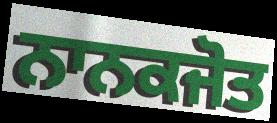
ਨਾਨਕਜੋਤ